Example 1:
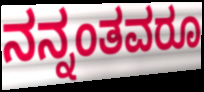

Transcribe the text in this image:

ನನ್ನಂತವರೂ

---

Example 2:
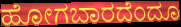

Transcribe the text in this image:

ಹೋಗಬಾರದೆಂದೂ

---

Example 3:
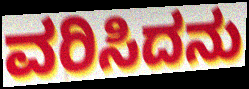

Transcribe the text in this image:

ವರಿಸಿದನು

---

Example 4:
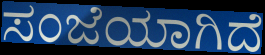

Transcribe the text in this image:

ಸಂಜೆಯಾಗಿದೆ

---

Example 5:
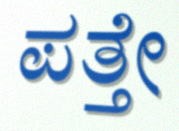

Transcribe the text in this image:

ಪತ್ತೇ